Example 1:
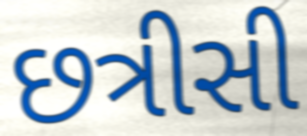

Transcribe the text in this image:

છત્રીસી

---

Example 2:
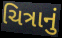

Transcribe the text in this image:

ચિત્રાનું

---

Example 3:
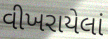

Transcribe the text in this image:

વીખરાયેલાં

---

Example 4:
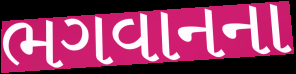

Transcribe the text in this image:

ભગવાનના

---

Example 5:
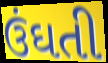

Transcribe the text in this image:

ઉંઘતી